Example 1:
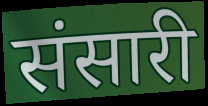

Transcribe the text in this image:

संसारी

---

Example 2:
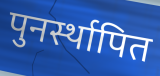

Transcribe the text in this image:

पुनर्स्थापित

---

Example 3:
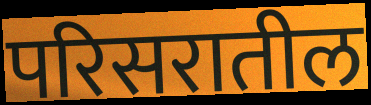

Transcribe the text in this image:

परिसरातील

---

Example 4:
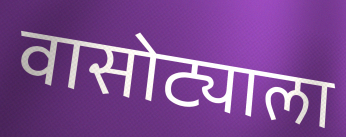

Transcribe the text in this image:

वासोट्याला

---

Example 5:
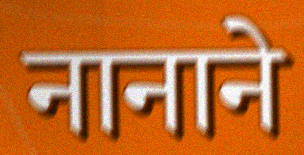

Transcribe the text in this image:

नानाने